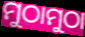
ମୁଠାମୁଠା